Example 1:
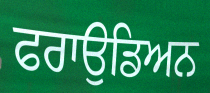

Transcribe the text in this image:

ਫਰਾਉਡਿਅਨ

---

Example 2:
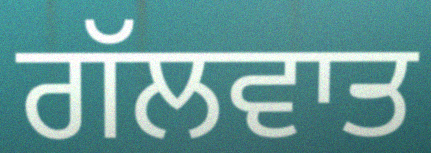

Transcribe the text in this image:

ਗੱਲਵਾਤ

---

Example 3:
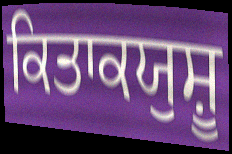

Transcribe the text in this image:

ਕਿਤਾਕਯੁਸ਼ੂ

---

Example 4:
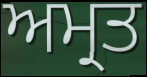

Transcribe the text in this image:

ਅਮ੍ਰਤ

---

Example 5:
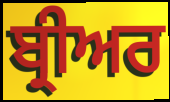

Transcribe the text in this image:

ਬ੍ਰੀਅਰ